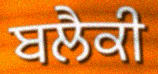
ਬਲੈਕੀ